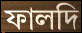
ফালদি